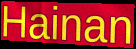
Hainan